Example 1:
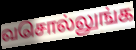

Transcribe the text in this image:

வசொல்லுங்க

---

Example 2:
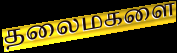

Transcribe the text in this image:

தலைமகளை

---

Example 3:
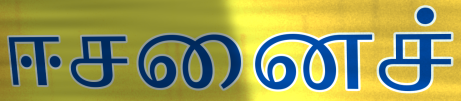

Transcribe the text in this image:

ஈசனைச்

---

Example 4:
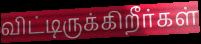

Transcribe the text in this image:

விட்டிருக்கிறீர்கள்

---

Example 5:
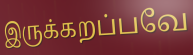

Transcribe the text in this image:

இருக்கறப்பவே